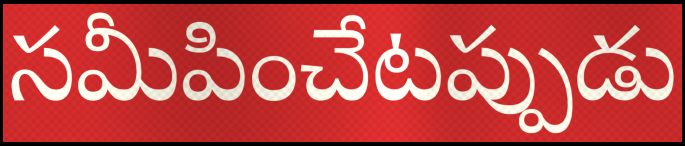
సమీపించేటప్పుడు